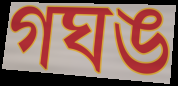
গঘঙ